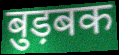
बुड़बक